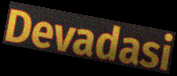
Devadasi